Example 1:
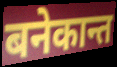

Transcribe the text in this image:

बनेकान्त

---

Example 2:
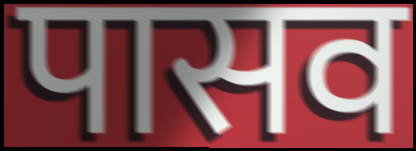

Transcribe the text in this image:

पासव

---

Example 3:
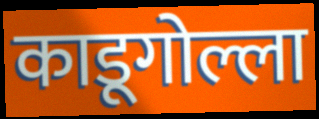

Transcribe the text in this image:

काडूगोल्ला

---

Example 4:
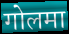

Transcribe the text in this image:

गोलमा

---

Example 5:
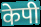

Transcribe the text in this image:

केपी